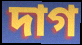
দাগ